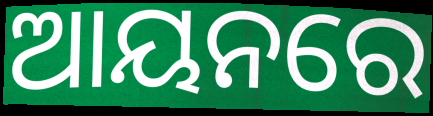
ଆୟନରେ